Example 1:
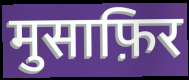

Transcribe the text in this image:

मुसाफ़िर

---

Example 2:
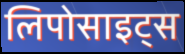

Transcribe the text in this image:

लिपोसाइट्स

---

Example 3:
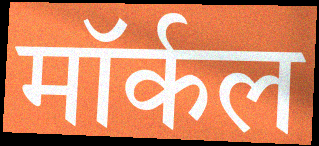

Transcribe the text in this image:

मॉर्कल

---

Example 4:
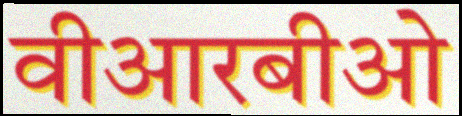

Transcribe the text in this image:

वीआरबीओ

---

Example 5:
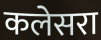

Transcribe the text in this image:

कलेसरा